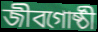
জীবগোষ্ঠী